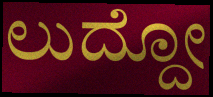
ಲುದ್ದೋ